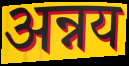
अन्नय